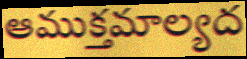
ఆముక్తమాల్యద